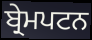
ਬ੍ਰੇਮਪਟਨ